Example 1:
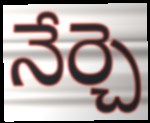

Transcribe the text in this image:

నేర్చె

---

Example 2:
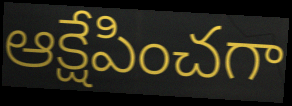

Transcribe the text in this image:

ఆక్షేపించగా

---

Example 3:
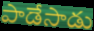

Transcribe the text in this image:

పాడేసాడు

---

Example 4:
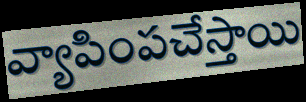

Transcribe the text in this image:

వ్యాపింపచేస్తాయి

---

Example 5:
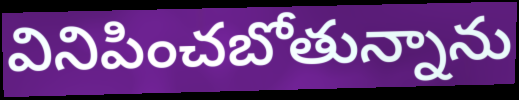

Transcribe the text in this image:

వినిపించబోతున్నాను